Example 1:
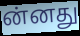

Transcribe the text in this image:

ன்னது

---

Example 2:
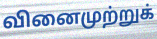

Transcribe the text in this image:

வினைமுற்றுக்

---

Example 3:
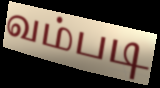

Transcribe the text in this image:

வம்படி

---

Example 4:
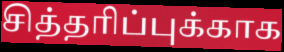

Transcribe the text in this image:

சித்தரிப்புக்காக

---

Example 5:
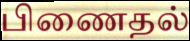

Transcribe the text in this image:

பிணைதல்